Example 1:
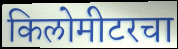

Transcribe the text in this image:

किलोमीटरचा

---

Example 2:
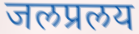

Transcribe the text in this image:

जलप्रलय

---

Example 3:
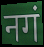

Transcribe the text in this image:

नगं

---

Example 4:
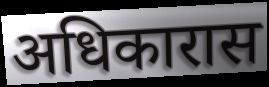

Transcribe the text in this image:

अधिकारास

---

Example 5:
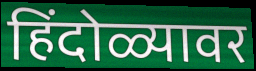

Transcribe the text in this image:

हिंदोळ्यावर